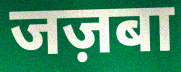
जज़बा